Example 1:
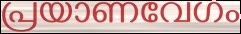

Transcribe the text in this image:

പ്രയാണവേഗം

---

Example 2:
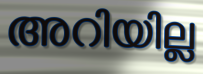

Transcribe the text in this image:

അറിയില്ല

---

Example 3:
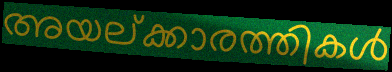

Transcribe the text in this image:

അയല്ക്കാരത്തികൾ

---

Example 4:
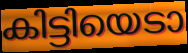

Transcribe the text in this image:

കിട്ടിയെടാ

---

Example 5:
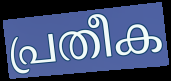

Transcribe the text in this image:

പ്രതീക